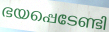
ഭയപ്പെടേണ്ടി